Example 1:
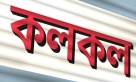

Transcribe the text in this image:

কলকল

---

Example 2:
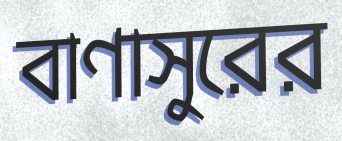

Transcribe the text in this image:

বাণাসুরের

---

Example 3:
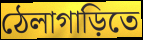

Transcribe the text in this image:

ঠেলাগাড়িতে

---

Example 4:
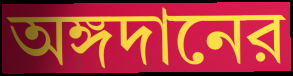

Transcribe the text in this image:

অঙ্গদানের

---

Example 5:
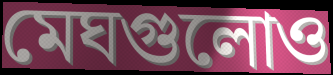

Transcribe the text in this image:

মেঘগুলোও